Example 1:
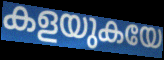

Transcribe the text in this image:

കളയുകയേ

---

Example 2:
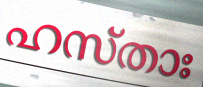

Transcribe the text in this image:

ഹസ്താഃ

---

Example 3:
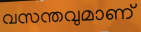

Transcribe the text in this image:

വസന്തവുമാണ്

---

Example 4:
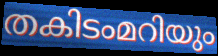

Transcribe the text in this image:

തകിടംമറിയും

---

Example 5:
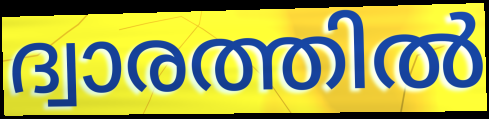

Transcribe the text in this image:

ദ്വാരത്തിൽ